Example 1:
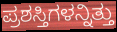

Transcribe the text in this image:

ಪ್ರಶಸ್ತಿಗಳನ್ನಿತ್ತು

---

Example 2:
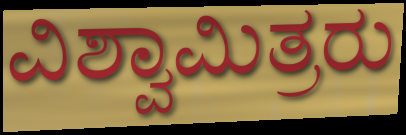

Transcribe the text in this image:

ವಿಶ್ವಾಮಿತ್ರರು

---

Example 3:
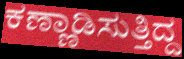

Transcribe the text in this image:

ಕಣ್ಣಾಡಿಸುತ್ತಿದ್ದ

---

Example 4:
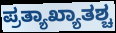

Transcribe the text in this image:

ಪ್ರತ್ಯಾಖ್ಯಾತಶ್ಚ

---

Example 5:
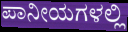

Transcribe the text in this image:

ಪಾನೀಯಗಳಲ್ಲಿ